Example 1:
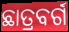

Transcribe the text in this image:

ଛାତ୍ରବର୍ଗ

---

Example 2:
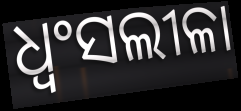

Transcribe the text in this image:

ଧ୍ୱଂସଲୀଳା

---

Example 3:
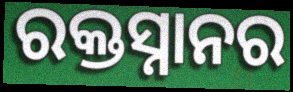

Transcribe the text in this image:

ରକ୍ତସ୍ନାନର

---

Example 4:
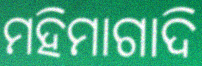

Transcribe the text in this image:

ମହିମାଗାଦି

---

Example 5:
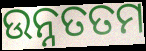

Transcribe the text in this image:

ଉନ୍ନତତମ